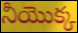
నీయొక్క